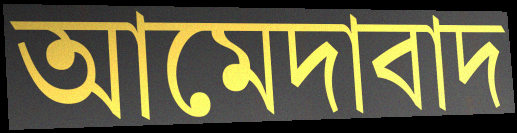
আমেদাবাদ